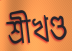
শ্রীখণ্ড